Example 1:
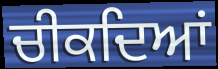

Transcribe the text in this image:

ਚੀਕਦਿਆਂ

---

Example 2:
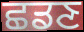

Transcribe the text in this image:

ਛਡਣ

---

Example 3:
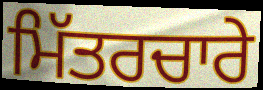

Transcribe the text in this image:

ਮਿੱਤਰਚਾਰੇ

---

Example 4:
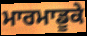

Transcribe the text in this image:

ਮਾਰਮਾਡੂਕੇ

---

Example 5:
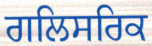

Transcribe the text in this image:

ਗਲਿਸਰਿਕ